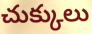
చుక్కులు